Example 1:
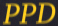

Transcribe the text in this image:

PPD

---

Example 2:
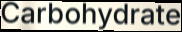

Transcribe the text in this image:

Carbohydrate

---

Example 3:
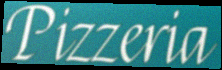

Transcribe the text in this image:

Pizzeria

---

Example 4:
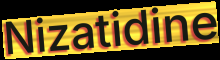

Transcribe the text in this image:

Nizatidine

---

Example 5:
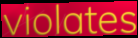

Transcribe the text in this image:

violates